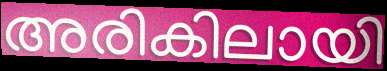
അരികിലായി